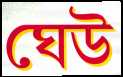
ঘেউ